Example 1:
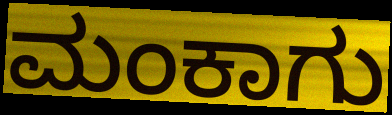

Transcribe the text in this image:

ಮಂಕಾಗು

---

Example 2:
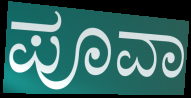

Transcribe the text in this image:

ಪೂವಾ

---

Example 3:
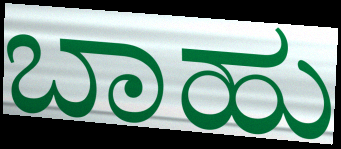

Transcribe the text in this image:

ಬಾಹು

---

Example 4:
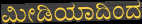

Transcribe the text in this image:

ಮೀಡಿಯಾದಿಂದ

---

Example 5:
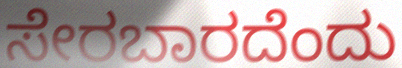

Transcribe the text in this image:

ಸೇರಬಾರದೆಂದು